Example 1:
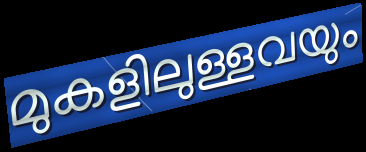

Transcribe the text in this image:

മുകളിലുള്ളവയും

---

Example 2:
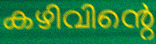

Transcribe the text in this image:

കഴിവിന്റെ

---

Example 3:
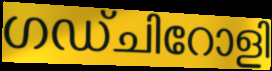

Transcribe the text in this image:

ഗഡ്ചിറോളി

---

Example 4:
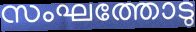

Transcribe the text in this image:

സംഘത്തോടു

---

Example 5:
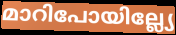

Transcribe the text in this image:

മാറിപോയില്ല്യേ